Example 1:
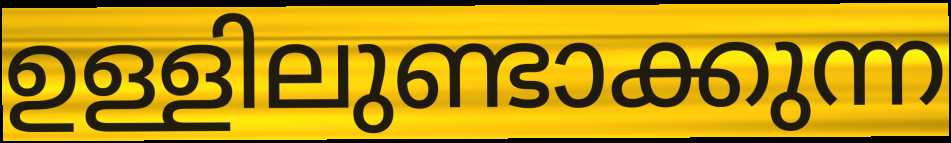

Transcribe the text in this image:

ഉള്ളിലുണ്ടാക്കുന്ന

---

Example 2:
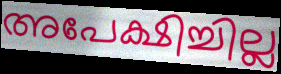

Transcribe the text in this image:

അപേക്ഷിച്ചില്ല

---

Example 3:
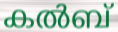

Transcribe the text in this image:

കൽബ്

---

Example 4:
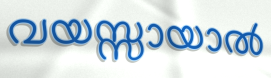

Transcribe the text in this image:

വയസ്സായാൽ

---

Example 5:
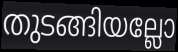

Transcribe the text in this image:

തുടങ്ങിയല്ലോ